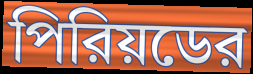
পিরিয়ডের